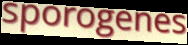
sporogenes